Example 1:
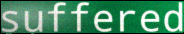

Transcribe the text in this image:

suffered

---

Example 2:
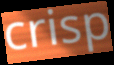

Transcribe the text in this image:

crisp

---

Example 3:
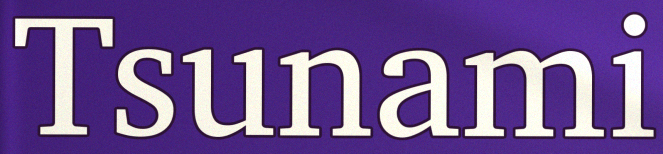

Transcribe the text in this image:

Tsunami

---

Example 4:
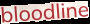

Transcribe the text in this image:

bloodline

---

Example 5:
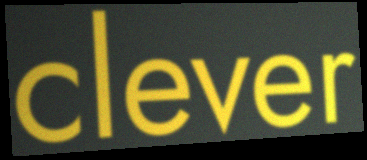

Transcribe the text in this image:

clever